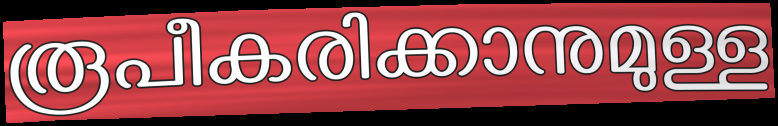
രൂപീകരിക്കാനുമുള്ള